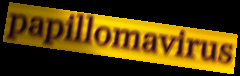
papillomavirus